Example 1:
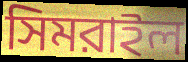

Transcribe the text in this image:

সিমরাইল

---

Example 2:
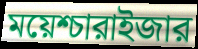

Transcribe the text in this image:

ময়েশ্চারাইজার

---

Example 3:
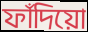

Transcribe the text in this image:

ফাঁদিয়ো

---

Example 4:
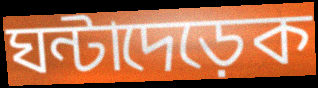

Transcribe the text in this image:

ঘন্টাদেড়েক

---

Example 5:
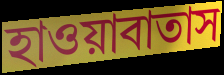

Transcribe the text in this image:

হাওয়াবাতাস